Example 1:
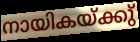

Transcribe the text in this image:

നായികയ്ക്കു്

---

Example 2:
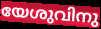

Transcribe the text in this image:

യേശുവിനു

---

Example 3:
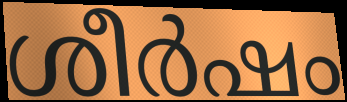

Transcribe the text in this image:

ശീർഷം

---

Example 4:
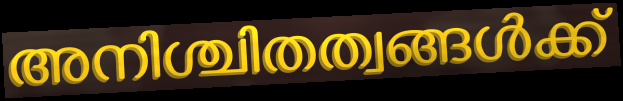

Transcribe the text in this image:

അനിശ്ചിതത്വങ്ങൾക്ക്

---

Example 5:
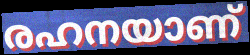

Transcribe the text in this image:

രഹനയാണ്